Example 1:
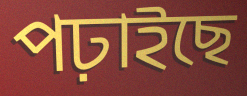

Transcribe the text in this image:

পঢ়াইছে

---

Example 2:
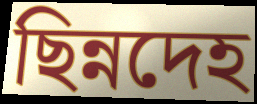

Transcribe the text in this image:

ছিন্নদেহ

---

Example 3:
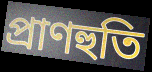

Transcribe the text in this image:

প্ৰাণহুতি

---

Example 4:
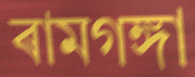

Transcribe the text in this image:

ৰামগঙ্গা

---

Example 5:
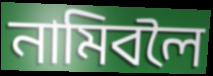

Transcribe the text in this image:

নামিবলৈ